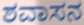
ಶವಾಸನ